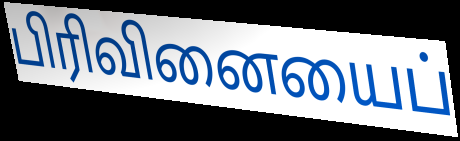
பிரிவினையைப்